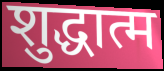
शुद्धात्म